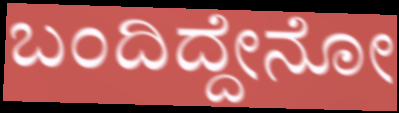
ಬಂದಿದ್ದೇನೋ